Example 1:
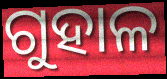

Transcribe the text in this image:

ଗୁହାଳ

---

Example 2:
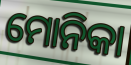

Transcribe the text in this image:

ମୋନିକା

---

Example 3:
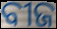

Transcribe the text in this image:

ବୀଜ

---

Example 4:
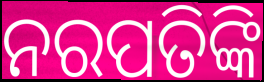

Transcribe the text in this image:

ନରପତିଙ୍କି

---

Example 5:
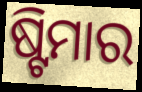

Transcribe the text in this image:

ଷ୍ଟିମାର